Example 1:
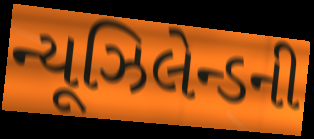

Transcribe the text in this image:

ન્યૂઝિલેન્ડની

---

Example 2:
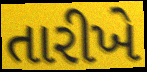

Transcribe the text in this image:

તારીખે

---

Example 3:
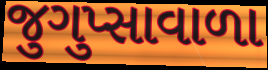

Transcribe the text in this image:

જુગુપ્સાવાળા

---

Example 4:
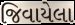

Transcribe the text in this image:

જિવાયેલા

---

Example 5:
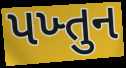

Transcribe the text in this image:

પખ્તુન